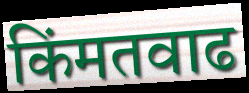
किंमतवाढ